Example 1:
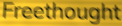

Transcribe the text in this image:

Freethought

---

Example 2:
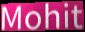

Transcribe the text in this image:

Mohit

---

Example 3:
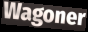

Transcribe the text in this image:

Wagoner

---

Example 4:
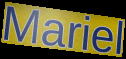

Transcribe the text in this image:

Mariel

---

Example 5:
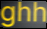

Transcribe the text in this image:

ghh